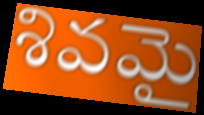
శివమై